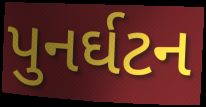
પુનર્ઘટન